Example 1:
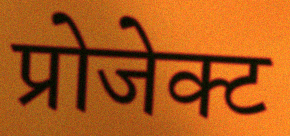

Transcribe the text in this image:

प्रोजेक्ट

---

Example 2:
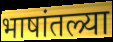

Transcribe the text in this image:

भाषांतल्या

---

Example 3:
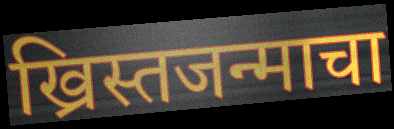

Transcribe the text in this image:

ख्रिस्तजन्माचा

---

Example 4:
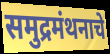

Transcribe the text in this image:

समुद्रमंथनाचे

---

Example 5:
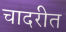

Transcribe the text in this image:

चादरीत